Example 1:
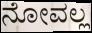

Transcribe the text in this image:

ನೋವಲ್ಲ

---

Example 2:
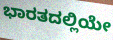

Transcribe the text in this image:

ಭಾರತದಲ್ಲಿಯೇ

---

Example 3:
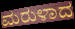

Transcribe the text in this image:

ಮರುಳಾದ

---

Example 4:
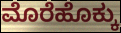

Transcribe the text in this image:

ಮೊರೆಹೊಕ್ಕು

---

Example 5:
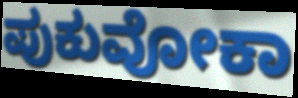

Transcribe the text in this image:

ಪುಕುವೋಕಾ